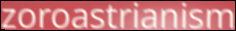
zoroastrianism